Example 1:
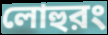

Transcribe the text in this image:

লোহুরং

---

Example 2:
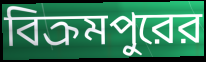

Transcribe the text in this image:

বিক্রমপুরের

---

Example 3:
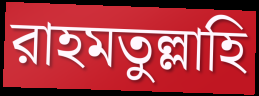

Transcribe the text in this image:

রাহমতুল্লাহি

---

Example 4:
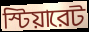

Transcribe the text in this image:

স্টিয়ারেট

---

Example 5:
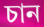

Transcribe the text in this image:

চান